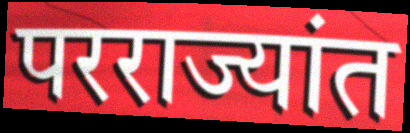
परराज्यांत